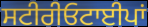
ਸਟੀਰੀਓਟਾਈਪਾਂ